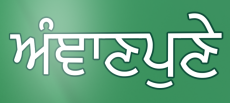
ਅੰਞਾਣਪੁਣੇ